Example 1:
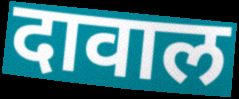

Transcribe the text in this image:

दावाल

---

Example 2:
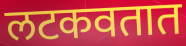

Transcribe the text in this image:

लटकवतात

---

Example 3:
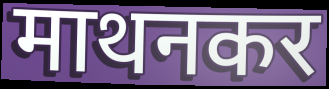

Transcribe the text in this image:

माथनकर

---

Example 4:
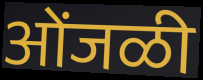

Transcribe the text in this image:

ओंजळी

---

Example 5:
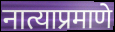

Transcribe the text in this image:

नात्याप्रमाणे